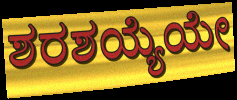
ಶರಶಯ್ಯೆಯೇ